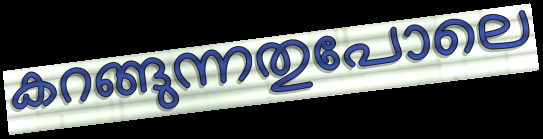
കറങ്ങുന്നതുപോലെ